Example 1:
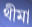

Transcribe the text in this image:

থীমা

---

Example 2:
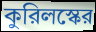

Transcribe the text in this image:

কুরিলস্কের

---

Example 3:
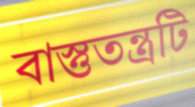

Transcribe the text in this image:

বাস্তুতন্ত্রটি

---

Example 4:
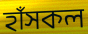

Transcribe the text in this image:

হাঁসকল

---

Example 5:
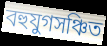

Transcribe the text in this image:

বহুযুগসঞ্চিত